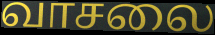
வாசலை